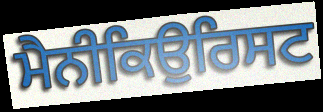
ਮੈਨੀਕਿਉਰਿਸਟ